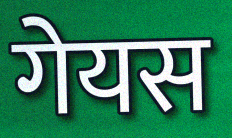
गेयस